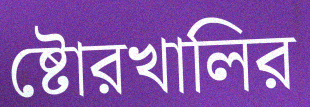
ষ্টোরখালির